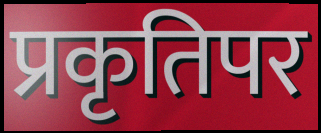
प्रकृतिपर